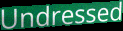
Undressed